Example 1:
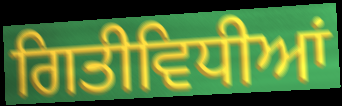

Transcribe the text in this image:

ਗਿਤੀਵਿਧੀਆਂ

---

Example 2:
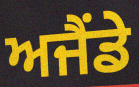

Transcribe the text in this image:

ਅਜੈਂਡੇ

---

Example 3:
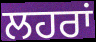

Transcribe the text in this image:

ਲਹਰਾਂ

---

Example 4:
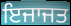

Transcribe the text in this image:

ਇਜਾਜਤ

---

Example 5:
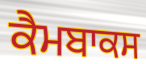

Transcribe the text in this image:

ਕੈਮਬਾਕਸ